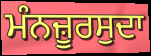
ਮੰਨਜ਼ੂਰਸੁਦਾ